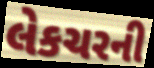
લેકચરની